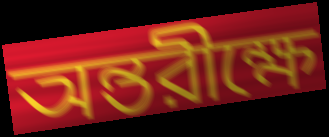
অন্তরীক্ষে